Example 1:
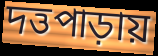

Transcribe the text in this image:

দত্তপাড়ায়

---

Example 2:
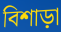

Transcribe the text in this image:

বিশাড়া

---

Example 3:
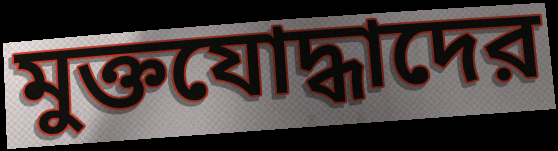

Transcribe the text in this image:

মুক্তযোদ্ধাদের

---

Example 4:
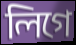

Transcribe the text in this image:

লিগে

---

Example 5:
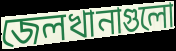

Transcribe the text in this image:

জেলখানাগুলো